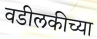
वडीलकीच्या